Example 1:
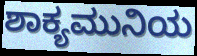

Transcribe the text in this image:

ಶಾಕ್ಯಮುನಿಯ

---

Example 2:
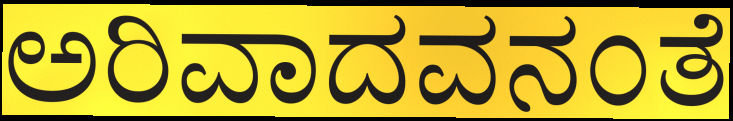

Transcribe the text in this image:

ಅರಿವಾದವನಂತೆ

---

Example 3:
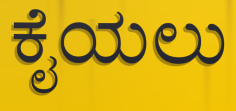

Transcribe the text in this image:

ಕೈಯಲು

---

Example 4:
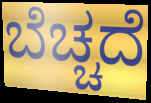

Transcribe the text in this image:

ಬೆಚ್ಚದೆ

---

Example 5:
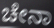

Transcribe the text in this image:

ಚೇನಾ